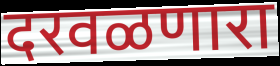
दरवळणारा